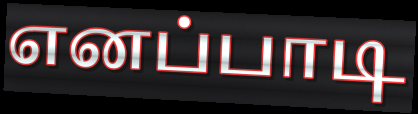
எனப்பாடி